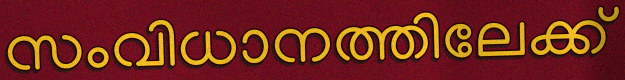
സംവിധാനത്തിലേക്ക്